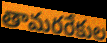
తామరరేకుల